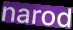
narod